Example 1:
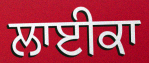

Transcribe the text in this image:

ਲਾਈਕਾ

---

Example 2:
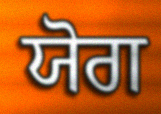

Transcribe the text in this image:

ਯੋਗ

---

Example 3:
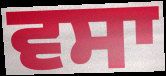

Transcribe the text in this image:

ਵਸਾ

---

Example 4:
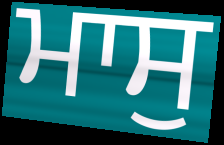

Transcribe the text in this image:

ਮਾਸੁ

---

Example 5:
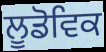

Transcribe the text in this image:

ਲੂਡੋਵਿਕ